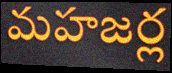
మహజర్ల